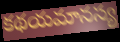
కథయమానస్య